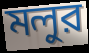
মলুর